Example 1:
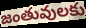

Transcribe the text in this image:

జంతువులకు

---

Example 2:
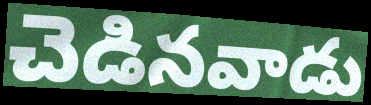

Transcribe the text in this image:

చెడినవాడు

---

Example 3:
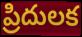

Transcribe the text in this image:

ప్రిదులక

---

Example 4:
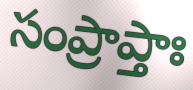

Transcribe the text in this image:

సంప్రాప్తాః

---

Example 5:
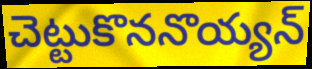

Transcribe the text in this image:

చెట్టుకొననొయ్యన్